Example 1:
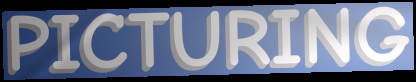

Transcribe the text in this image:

PICTURING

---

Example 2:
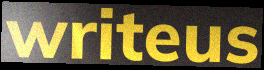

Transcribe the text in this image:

writeus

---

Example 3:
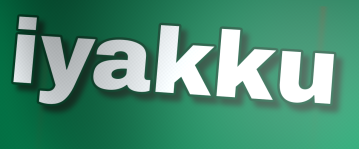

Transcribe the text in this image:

iyakku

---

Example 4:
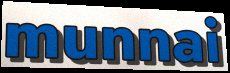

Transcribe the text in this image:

munnai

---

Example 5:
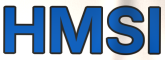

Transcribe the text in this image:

HMSI